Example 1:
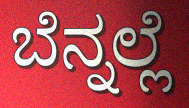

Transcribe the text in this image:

ಬೆನ್ನಲ್ಲೆ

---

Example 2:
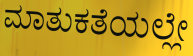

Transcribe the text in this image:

ಮಾತುಕತೆಯಲ್ಲೇ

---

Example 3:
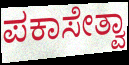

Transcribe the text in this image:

ಪಕಾಸೇತ್ವಾ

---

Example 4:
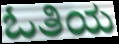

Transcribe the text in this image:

ಓತಿಯ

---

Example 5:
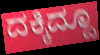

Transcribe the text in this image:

ದಕ್ಕಿದ್ದೂ